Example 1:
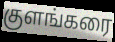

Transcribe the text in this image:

குளங்கரை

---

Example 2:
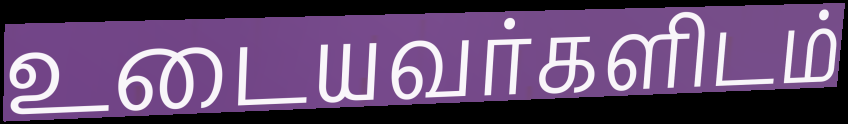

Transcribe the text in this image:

உடையவர்களிடம்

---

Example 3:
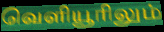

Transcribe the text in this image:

வெளியூரிலும்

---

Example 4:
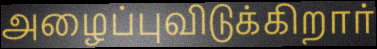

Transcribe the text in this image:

அழைப்புவிடுக்கிறார்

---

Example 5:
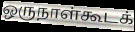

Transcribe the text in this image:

ஒருநாள்கூடக்